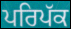
ਪਰਿਪੱਕ